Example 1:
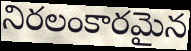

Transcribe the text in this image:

నిరలంకారమైన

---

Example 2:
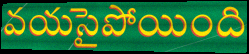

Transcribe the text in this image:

వయసైపోయింది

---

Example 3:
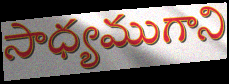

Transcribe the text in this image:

సాధ్యముగాని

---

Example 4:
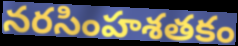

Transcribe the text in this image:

నరసింహశతకం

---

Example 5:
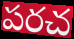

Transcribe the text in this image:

పరచ